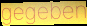
gegeben